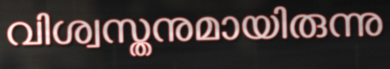
വിശ്വസ്തനുമായിരുന്നു